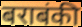
बराबंकी